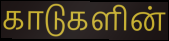
காடுகளின்